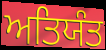
ਅਤਿਯੰਤ